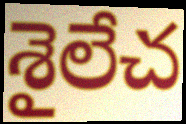
శైలేచ